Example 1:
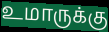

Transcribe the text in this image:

உமாருக்கு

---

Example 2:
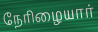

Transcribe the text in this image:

நேரிழையார்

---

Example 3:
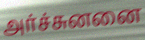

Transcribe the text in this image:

அர்ச்சுனனை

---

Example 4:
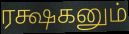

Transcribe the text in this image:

ரக்ஷகனும்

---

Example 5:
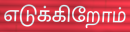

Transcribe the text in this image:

எடுக்கிறோம்